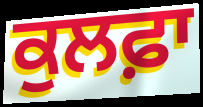
ਕੁਲਫ਼ਾ